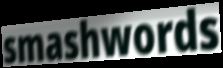
smashwords